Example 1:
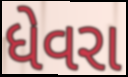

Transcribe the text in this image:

ધેવરા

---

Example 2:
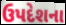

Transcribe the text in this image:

ઉપદેશના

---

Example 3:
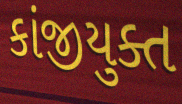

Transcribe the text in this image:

કાંજીયુક્ત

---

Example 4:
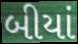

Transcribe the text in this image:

બીયાં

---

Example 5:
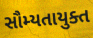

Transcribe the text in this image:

સૌમ્યતાયુક્ત